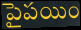
పైపయిం